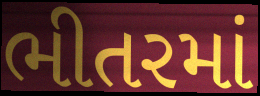
ભીતરમાં